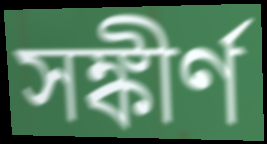
সঙ্কীর্ণ